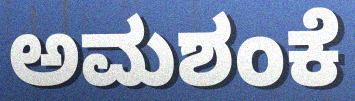
ಅಮಶಂಕೆ